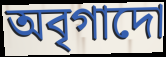
অবৃগাদো